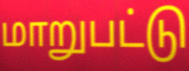
மாறுபட்டு